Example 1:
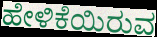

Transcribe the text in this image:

ಹೇಳಿಕೆಯಿರುವ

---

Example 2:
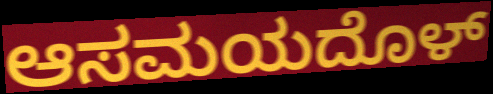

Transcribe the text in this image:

ಆಸಮಯದೊಳ್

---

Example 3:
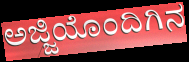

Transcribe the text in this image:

ಅಜ್ಜಿಯೊಂದಿಗಿನ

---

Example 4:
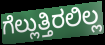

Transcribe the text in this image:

ಗೆಲ್ಲುತ್ತಿರಲಿಲ್ಲ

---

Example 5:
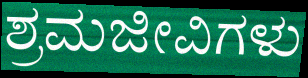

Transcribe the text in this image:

ಶ್ರಮಜೀವಿಗಳು